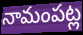
నామంపట్ల